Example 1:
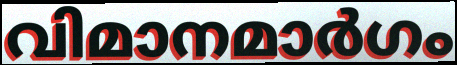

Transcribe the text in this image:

വിമാനമാർഗം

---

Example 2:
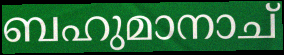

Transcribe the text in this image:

ബഹുമാനാച്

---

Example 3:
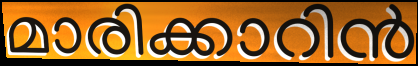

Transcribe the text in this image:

മാരിക്കാറിൻ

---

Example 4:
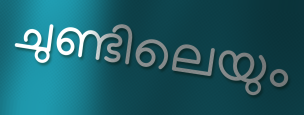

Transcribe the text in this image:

ചുണ്ടിലെയും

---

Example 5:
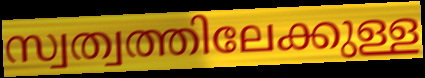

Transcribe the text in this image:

സ്വത്വത്തിലേക്കുള്ള